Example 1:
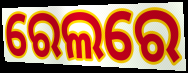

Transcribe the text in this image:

ରେଲରେ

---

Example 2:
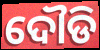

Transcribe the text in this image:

ଦୌଡି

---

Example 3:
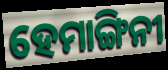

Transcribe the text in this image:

ହେମାଙ୍ଗିନୀ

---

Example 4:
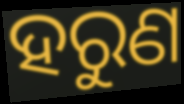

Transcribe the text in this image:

ହରୁଣ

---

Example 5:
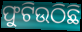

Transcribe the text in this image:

ଫୁଟିଉଠିଛି